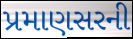
પ્રમાણસરની